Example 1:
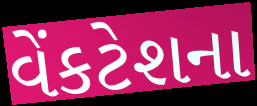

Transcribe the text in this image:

વેંકટેશના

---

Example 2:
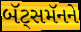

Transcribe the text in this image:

બૅટ્સમૅનને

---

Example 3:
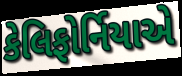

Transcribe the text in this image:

કેલિફોર્નિયાએ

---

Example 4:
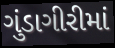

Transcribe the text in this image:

ગુંડાગીરીમાં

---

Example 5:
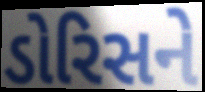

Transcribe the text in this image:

ડોરિસને